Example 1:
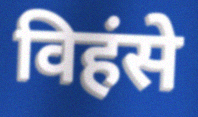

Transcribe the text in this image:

विहंसे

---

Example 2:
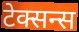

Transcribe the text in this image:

टेक्सन्स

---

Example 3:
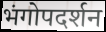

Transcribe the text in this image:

भंगोपदर्शन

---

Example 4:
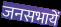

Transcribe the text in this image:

जनसभायें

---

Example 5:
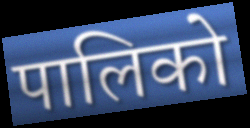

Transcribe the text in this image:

पालिको